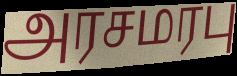
அரசமரபு